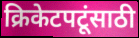
क्रिकेटपटूंसाठी